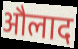
औलाद